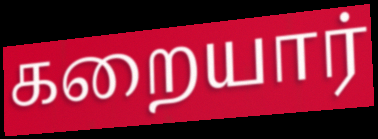
கறையார்